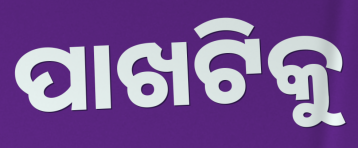
ପାଖଟିକୁ